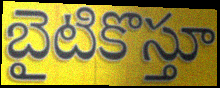
బైటికొస్తూ